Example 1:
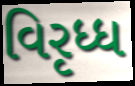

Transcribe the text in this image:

વિરૃધ્ધ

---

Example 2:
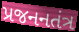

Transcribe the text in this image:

પ્રજનનતંત્ર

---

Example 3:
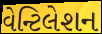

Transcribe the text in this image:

વેન્ટિલેશન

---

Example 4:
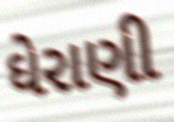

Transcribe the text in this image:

ઘેરાણી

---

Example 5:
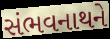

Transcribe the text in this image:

સંભવનાથને